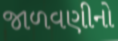
જાળવણીનો